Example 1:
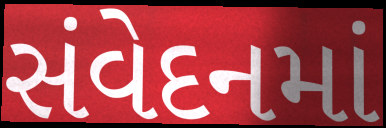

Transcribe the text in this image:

સંવેદનમાં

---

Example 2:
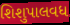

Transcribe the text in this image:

શિશુપાલવધ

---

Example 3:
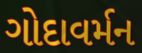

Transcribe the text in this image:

ગોદાવર્મન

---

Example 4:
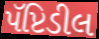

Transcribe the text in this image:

પૅપ્ટિડીલ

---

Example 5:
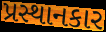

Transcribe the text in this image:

પ્રસ્થાનકાર